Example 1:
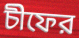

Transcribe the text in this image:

চীফের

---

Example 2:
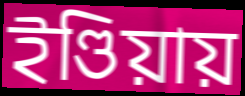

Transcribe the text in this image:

ইণ্ডিয়ায়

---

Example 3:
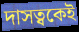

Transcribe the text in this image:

দাসত্বকেই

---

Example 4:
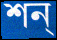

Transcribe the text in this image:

শন্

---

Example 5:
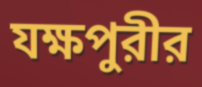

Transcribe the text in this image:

যক্ষপুরীর